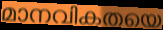
മാനവികതയെ